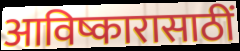
आविष्कारासाठीं